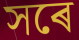
সৰে